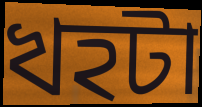
খহটা